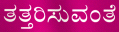
ತತ್ತರಿಸುವಂತೆ